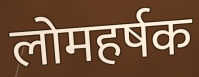
लोमहर्षक